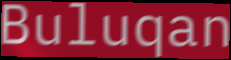
Buluqan